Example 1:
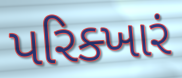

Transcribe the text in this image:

પરિક્ખારં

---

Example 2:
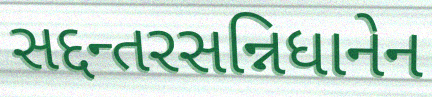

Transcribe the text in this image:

સદ્દન્તરસન્નિધાનેન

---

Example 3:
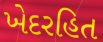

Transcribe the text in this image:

ખેદરહિત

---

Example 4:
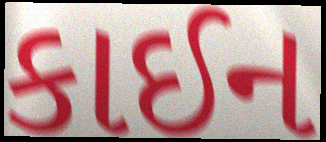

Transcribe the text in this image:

કાઈન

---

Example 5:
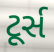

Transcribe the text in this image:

ટૂર્સ